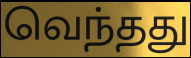
வெந்தது